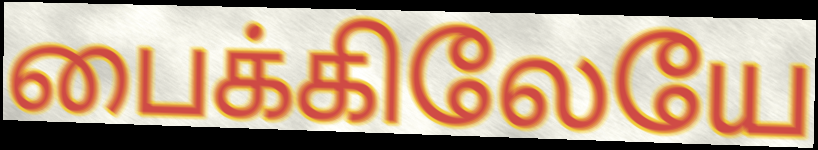
பைக்கிலேயே